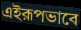
এইরূপভাবে